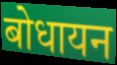
बोधायन